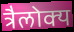
त्रैलोक्य